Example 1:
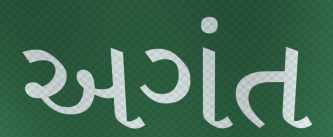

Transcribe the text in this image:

અગંત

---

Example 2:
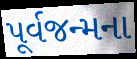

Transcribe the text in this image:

પૂર્વજન્મના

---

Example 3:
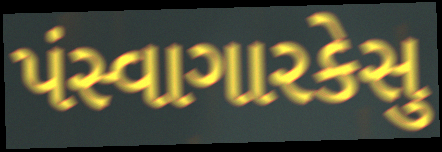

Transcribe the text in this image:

પંસ્વાગારકેસુ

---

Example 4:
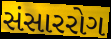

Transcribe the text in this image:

સંસારરોગ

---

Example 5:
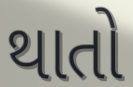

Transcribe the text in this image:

થાતો